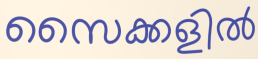
സൈക്കളിൽ